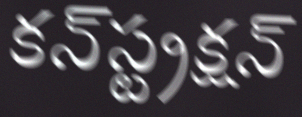
కన్‍స్ట్రక్షన్